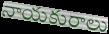
నాయకురాలు